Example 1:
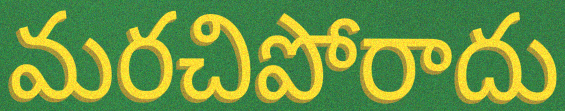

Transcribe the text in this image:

మరచిపోరాదు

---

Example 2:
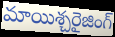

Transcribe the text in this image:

మాయిశ్చరైజింగ్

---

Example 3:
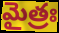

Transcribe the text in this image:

మైత్రః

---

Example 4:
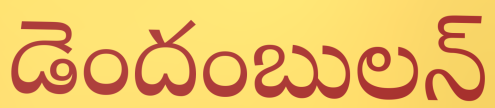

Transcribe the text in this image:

డెందంబులన్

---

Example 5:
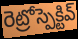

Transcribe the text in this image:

రెట్రోస్పెక్టివ్